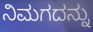
ನಿಮಗದನ್ನು